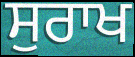
ਸੁਰਾਖ